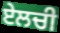
ਏਲਚੀ